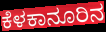
ಕೆಳಕಾನೂರಿನ